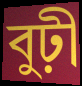
বুঢ়ী